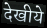
देखीये